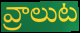
వ్రాలుట